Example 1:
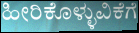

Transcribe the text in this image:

ಹೀರಿಕೊಳ್ಳುವಿಕೆಗೆ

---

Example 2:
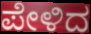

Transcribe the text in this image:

ಪೇಳಿದ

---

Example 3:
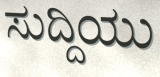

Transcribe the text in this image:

ಸುದ್ದಿಯು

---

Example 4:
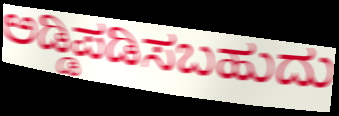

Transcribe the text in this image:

ಅಡ್ಡಿಪಡಿಸಬಹುದು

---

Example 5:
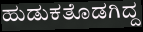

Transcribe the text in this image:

ಹುಡುಕತೊಡಗಿದ್ದ